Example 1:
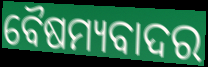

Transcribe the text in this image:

ବୈଷମ୍ୟବାଦର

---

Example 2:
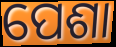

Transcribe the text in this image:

ପେଶା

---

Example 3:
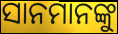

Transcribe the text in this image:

ସାନମାନଙ୍କୁ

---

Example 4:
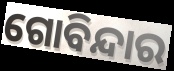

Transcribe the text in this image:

ଗୋବିନ୍ଦାର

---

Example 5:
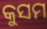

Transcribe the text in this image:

କୁସମ